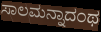
ಸಾಲಮನ್ನಾದಂಥ